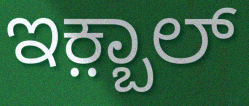
ಇಕ಼್ಬಾಲ್